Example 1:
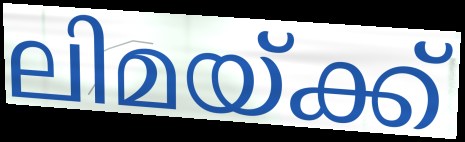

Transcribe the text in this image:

ലിമയ്ക്ക്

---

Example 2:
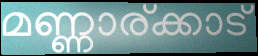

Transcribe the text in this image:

മണ്ണാര്ക്കാട്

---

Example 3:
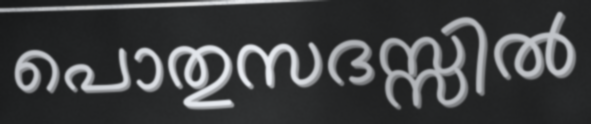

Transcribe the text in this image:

പൊതുസദസ്സിൽ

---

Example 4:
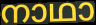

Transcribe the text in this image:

നാഥാ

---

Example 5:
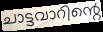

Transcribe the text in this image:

ചാട്ടവാറിന്റെ